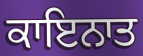
ਕਾਇਨਾਤ